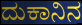
ದುಕಾನಿನ